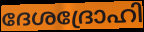
ദേശദ്രോഹി